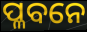
ପ୍ଳବନେ